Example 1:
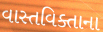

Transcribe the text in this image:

વાસ્તવિક્તાના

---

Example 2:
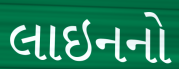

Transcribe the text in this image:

લાઇનનો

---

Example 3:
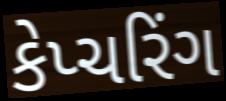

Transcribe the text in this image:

કેપ્ચરિંગ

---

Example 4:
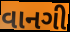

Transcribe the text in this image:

વાનગી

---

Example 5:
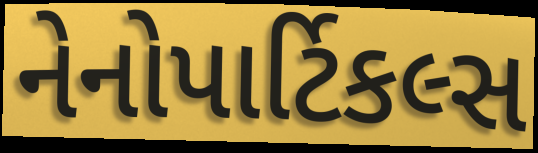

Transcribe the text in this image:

નેનોપાર્ટિકલ્સ